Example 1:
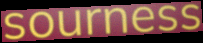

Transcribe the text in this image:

sourness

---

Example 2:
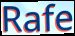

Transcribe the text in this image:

Rafe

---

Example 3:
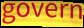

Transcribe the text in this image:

govern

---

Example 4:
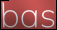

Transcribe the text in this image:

bas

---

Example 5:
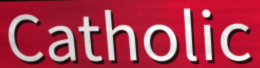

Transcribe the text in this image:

Catholic